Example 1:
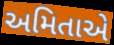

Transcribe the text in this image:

અમિતાએ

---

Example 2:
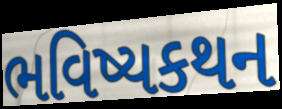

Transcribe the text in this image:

ભવિષ્યકથન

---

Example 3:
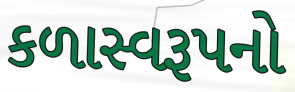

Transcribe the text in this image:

કળાસ્વરૂપનો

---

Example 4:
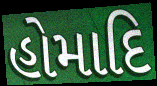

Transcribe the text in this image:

હોમાદિ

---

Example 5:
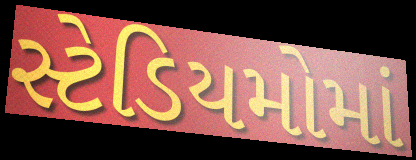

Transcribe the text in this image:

સ્ટેડિયમોમાં